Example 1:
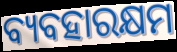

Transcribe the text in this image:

ବ୍ୟବହାରକ୍ଷମ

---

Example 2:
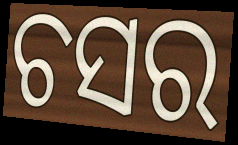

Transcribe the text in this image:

ଚସର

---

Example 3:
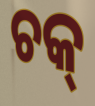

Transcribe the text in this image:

ଚକ୍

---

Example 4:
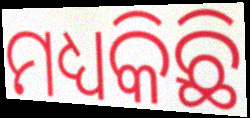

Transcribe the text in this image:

ମଧ୍ୟକିଛି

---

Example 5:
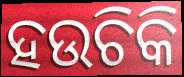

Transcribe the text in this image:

ହଉଚିକି